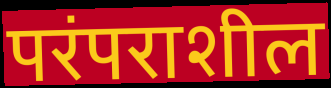
परंपराशील